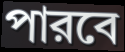
পারবে